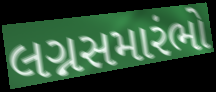
લગ્નસમારંભો